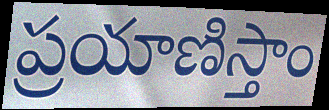
ప్రయాణిస్తాం